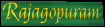
Rajagopuram